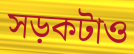
সড়কটাও